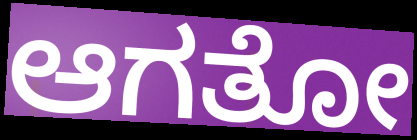
ಆಗತೋ